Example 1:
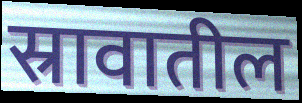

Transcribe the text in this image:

स्रावातील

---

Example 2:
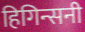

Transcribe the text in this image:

हिगिन्सनी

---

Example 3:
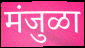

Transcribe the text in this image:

मंजुळा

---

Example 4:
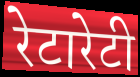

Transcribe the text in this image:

रेटारेटी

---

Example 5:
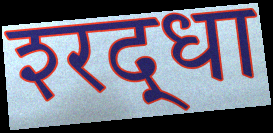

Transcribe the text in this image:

श्रद्धा